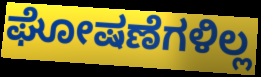
ಘೋಷಣೆಗಳಿಲ್ಲ